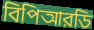
বিপিআরডি